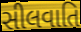
સીલવાતિ